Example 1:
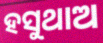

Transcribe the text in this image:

ହସୁଥାଅ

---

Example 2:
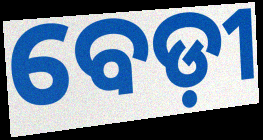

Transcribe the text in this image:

ବେଡ଼ୀ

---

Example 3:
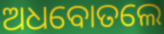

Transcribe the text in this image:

ଅଧବୋତଲେ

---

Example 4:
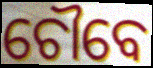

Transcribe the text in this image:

ଚୌବେ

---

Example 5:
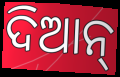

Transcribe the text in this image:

ଦିଆନ୍